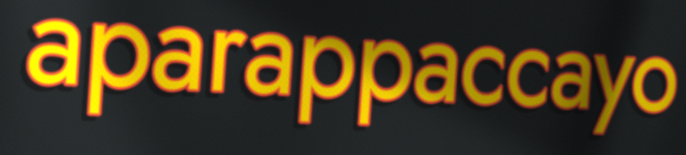
aparappaccayo